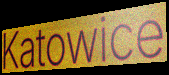
Katowice